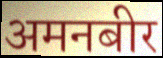
अमनबीर